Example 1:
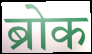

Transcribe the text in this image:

ब्रोक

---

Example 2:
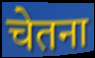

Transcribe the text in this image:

चेतना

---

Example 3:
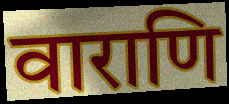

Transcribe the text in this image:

वाराणि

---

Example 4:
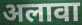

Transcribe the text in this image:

अलावा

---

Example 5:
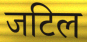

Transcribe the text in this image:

जटिल